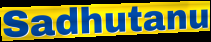
Sadhutanu